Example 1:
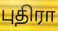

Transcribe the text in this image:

புதிரா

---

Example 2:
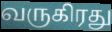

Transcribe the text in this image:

வருகிரது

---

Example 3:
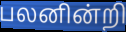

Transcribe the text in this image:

பலனின்றி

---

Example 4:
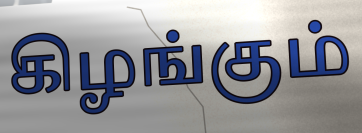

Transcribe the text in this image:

கிழங்கும்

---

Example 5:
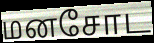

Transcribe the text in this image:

மனசோட